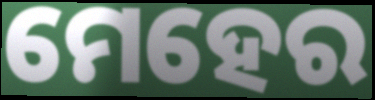
ମେହେର